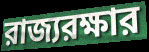
রাজ্যরক্ষার